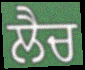
ਲੈਚ